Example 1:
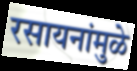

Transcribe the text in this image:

रसायनांमुळे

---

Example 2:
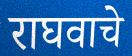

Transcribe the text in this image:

राघवाचे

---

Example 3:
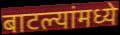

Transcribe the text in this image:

बाटल्यांमध्ये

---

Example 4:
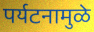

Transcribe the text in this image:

पर्यटनामुळे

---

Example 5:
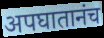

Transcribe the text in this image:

अपघातानंच